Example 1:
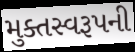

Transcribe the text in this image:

મુક્તસ્વરૂપની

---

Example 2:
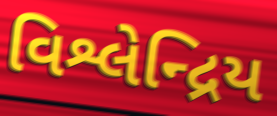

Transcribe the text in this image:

વિશ્લેન્દ્રિય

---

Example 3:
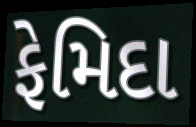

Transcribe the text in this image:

ફેમિદા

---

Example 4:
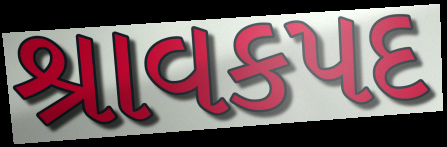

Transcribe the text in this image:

શ્રાવકપદ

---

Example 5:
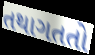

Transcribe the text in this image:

તથાગતતો